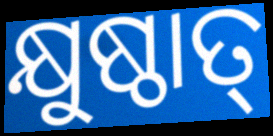
କ୍ଷୁଷ୍ଠାତ୍